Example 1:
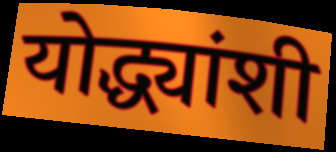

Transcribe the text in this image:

योद्ध्यांशी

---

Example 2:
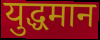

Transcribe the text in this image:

युद्धमान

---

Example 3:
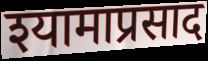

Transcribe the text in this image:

श्यामाप्रसाद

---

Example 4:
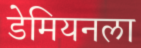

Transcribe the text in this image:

डेमियनला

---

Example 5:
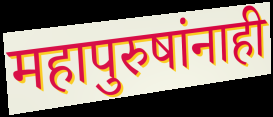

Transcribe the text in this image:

महापुरुषांनाही